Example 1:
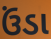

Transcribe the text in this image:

ઉંડા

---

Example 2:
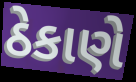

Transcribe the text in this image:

ઠેકાણે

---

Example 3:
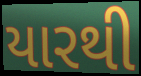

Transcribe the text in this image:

યારથી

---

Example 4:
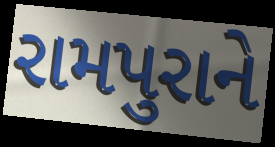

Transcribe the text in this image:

રામપુરાને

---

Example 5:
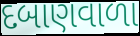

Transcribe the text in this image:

દબાણવાળા